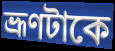
ভ্রূণটাকে